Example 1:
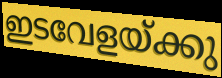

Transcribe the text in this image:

ഇടവേളയ്ക്കു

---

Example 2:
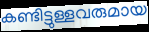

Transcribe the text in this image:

കണ്ടിട്ടുള്ളവരുമായ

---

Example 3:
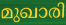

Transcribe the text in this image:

മുഖാരി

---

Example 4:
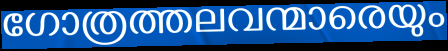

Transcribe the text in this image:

ഗോത്രത്തലവന്മാരെയും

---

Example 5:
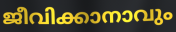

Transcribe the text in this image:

ജീവിക്കാനാവും